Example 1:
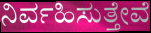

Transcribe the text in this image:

ನಿರ್ವಹಿಸುತ್ತೇವೆ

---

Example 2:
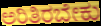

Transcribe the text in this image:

ಅರಿತಿರಬೇಕು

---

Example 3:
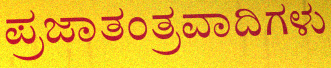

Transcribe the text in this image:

ಪ್ರಜಾತಂತ್ರವಾದಿಗಳು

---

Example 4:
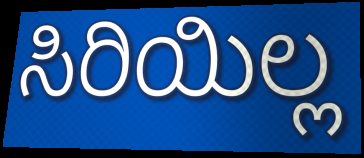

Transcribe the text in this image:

ಸಿರಿಯಿಲ್ಲ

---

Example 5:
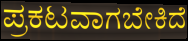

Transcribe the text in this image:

ಪ್ರಕಟವಾಗಬೇಕಿದೆ